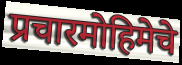
प्रचारमोहिमेचे